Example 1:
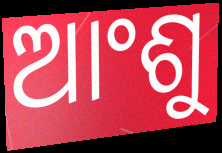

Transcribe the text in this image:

ଆଂଶୁ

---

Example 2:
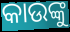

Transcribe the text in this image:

କାଉଙ୍କୁ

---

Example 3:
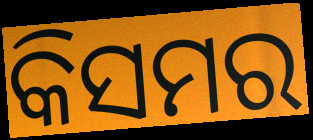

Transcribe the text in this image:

କିସମର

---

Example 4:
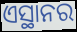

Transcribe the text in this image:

ଏସ୍ଥାନର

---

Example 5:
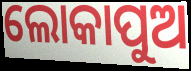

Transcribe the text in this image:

ଲୋକାପୁଅ